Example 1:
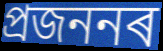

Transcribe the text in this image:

প্ৰজননৰ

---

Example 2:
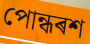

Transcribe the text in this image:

পোন্ধৰশ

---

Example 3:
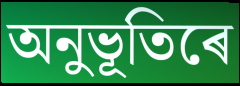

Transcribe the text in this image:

অনুভূতিৰে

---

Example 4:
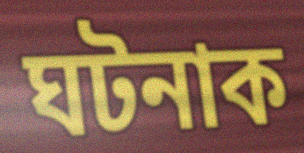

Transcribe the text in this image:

ঘটনাক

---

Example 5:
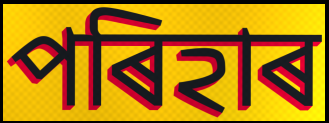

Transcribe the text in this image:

পৰিহাৰ